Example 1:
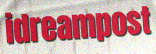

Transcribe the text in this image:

idreampost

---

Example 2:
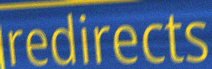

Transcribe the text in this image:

redirects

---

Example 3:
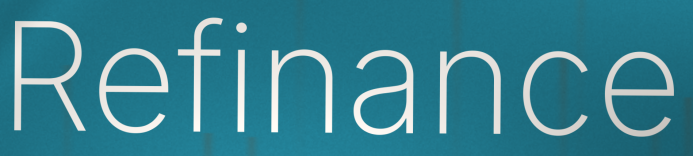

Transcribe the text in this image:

Refinance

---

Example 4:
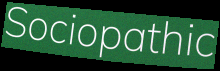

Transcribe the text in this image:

Sociopathic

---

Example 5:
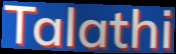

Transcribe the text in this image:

Talathi